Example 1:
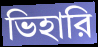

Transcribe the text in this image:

ভিহারি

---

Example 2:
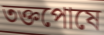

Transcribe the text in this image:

তক্তপোষে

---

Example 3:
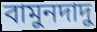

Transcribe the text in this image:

বামুনদাদু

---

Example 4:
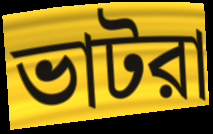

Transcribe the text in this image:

ভাটরা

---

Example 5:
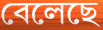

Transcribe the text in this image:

বেলেছে